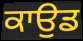
ਕਾਉਡ